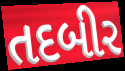
તદબીર